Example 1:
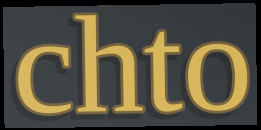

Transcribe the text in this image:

chto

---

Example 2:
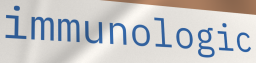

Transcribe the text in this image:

immunologic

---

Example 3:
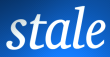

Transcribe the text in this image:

stale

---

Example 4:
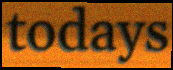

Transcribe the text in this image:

todays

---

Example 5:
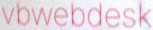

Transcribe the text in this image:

vbwebdesk